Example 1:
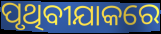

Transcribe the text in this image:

ପୃଥିବୀଯାକରେ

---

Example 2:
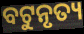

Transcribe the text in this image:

ବଟୁନୃତ୍ୟ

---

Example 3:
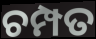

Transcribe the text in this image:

ଚମ୍ପତ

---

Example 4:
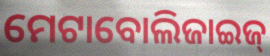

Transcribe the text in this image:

ମେଟାବୋଲିଜାଇଜ୍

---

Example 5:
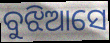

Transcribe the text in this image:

ବୁଝିଆସେ